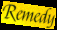
Remedy